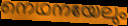
നെഥനയേലും